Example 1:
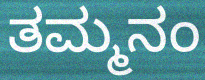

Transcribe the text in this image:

ತಮ್ಮನಂ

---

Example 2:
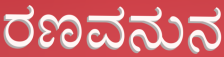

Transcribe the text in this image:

ರಣವನುನ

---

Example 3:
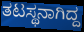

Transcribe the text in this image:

ತಟಸ್ಥನಾಗಿದ್ದ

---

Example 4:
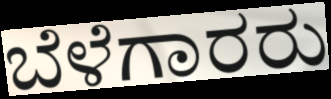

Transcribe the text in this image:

ಬೆಳೆಗಾರರು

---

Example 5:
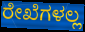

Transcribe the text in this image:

ರೇಖೆಗಳಲ್ಲ